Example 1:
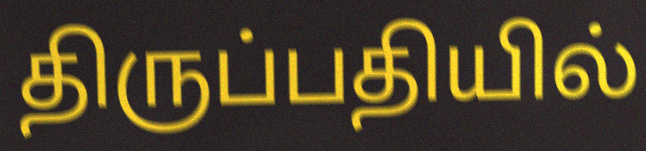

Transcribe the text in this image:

திருப்பதியில்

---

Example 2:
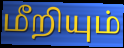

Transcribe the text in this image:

மீறியும்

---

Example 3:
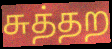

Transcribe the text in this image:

சுத்தற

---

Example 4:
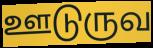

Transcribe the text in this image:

ஊடுருவ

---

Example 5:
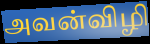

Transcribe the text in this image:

அவன்விழி